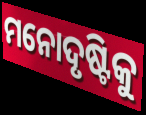
ମନୋଦୃଷ୍ଟିକୁ